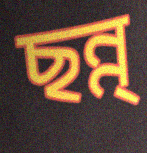
ছন্ন্